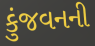
કુંજવનની